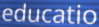
educatio